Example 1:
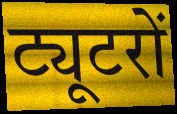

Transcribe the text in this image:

ट्यूटरों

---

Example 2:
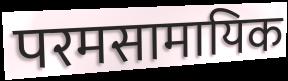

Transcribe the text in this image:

परमसामायिक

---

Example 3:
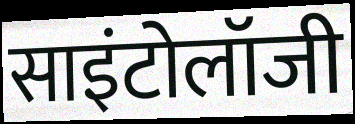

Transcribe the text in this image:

साइंटोलॉजी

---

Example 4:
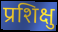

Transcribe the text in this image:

प्रशिक्षु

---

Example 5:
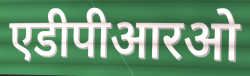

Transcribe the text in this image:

एडीपीआरओ